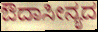
ಔದಾಸೀನ್ಯದ